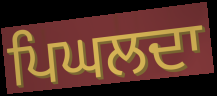
ਪਿਘਲਦਾ